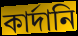
কার্দানি